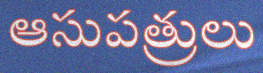
ఆసుపత్రులు